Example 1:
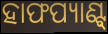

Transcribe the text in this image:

ହାଫପ୍ୟାଣ୍ଟ୍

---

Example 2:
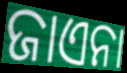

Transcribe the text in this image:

ଜାଏନା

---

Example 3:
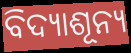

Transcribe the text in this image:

ବିଦ୍ୟାଶୂନ୍ୟ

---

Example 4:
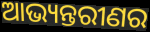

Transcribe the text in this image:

ଆଭ୍ୟନ୍ତରୀଣର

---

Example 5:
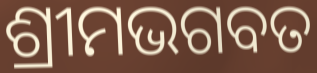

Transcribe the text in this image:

ଶ୍ରୀମଭଗବତ